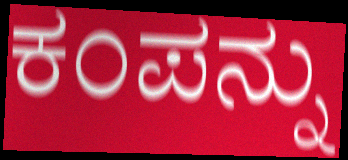
ಕಂಪನ್ನು